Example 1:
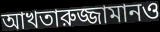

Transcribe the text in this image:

আখতারুজ্জামানও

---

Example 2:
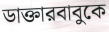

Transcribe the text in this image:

ডাক্তারবাবুকে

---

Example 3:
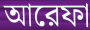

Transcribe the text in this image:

আরেফা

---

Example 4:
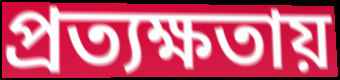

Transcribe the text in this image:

প্রত্যক্ষতায়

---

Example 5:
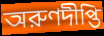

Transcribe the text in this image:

অরুণদীপ্তি